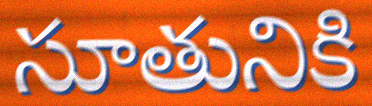
సూతునికి